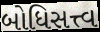
બોધિસત્ત્વ